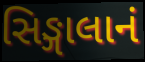
સિઙ્ગાલાનં